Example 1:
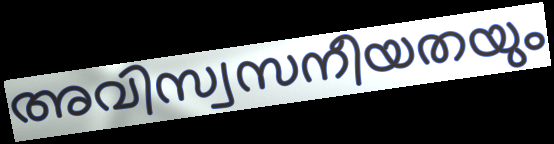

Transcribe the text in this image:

അവിസ്വസനീയതയും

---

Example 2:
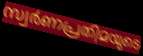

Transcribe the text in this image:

സ്വർണപ്രതിമയുടെ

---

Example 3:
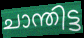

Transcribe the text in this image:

ചാന്തിട്ട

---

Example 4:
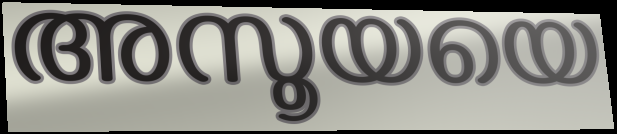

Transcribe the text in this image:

അസൂയയെ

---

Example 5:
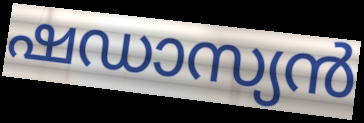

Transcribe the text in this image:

ഷഡാസ്യൻ